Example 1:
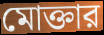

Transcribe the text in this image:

মোক্তার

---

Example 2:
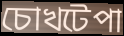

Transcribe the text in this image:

চোখটেপা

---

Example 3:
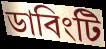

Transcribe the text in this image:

ডাবিংটি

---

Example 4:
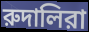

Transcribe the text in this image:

রুদালিরা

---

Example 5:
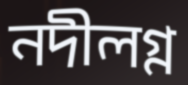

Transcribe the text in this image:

নদীলগ্ন